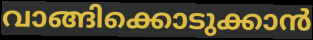
വാങ്ങിക്കൊടുക്കാൻ